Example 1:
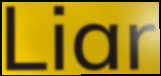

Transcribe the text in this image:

Liar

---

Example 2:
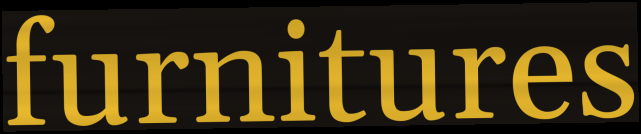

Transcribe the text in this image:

furnitures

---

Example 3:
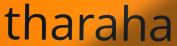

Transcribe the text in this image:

tharaha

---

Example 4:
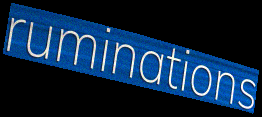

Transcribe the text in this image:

ruminations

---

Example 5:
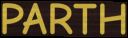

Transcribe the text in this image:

PARTH